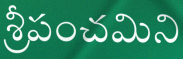
శ్రీపంచమిని